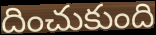
దించుకుంది